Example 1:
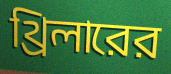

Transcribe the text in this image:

থ্রিলারের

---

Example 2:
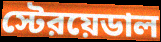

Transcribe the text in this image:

স্টেরয়েডাল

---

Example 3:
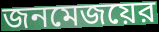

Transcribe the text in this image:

জনমেজয়ের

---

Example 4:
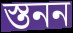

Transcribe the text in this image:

স্তনন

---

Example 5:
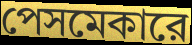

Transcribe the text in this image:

পেসমেকারে